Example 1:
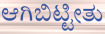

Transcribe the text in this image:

ಆಗಿಬಿಟ್ಟೀತು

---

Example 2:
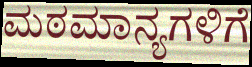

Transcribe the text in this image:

ಮಠಮಾನ್ಯಗಳಿಗೆ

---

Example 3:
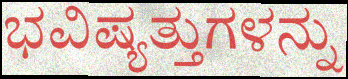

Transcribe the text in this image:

ಭವಿಷ್ಯತ್ತುಗಳನ್ನು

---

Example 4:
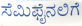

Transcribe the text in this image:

ಸೆಮಿಫೈನಲಿಗೆ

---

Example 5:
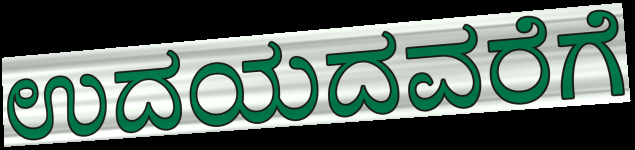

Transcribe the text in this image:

ಉದಯದವರೆಗೆ